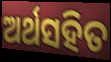
ଅର୍ଥସହିତ